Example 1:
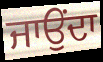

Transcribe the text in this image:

ਜਾਉਂਦਾ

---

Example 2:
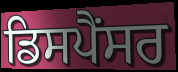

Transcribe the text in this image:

ਡਿਸਪੈਂਸਰ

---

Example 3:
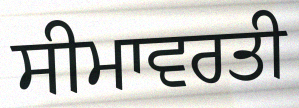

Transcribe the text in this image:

ਸੀਮਾਵਰਤੀ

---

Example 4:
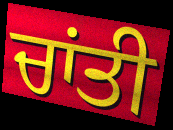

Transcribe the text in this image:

ਚਾਂਤੀ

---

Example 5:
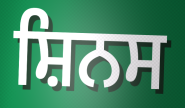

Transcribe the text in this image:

ਸ਼ਿਨਸ